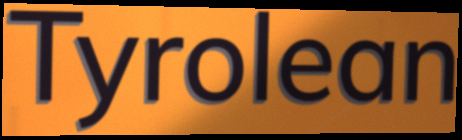
Tyrolean